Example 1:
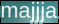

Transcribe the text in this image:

majjja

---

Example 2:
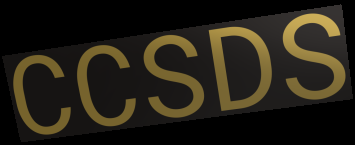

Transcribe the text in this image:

CCSDS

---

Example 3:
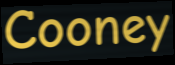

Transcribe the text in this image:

Cooney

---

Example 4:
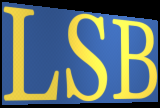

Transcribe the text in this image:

LSB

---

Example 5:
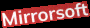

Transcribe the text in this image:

Mirrorsoft